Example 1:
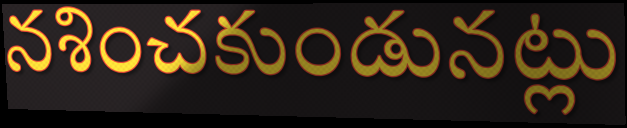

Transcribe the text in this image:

నశించకుండునట్లు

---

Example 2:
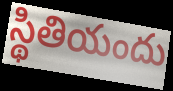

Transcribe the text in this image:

స్థితియందు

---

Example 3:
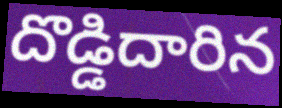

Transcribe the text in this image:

దొడ్డిదారిన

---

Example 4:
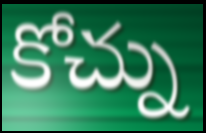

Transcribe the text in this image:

కోచ్ను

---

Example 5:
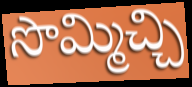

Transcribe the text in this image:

సొమ్మిచ్చి